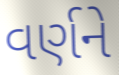
વર્ણને